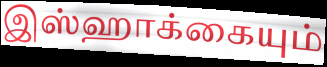
இஸ்ஹாக்கையும்